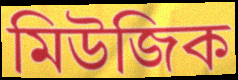
মিউজিক